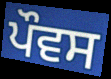
ਪੌਵਸ